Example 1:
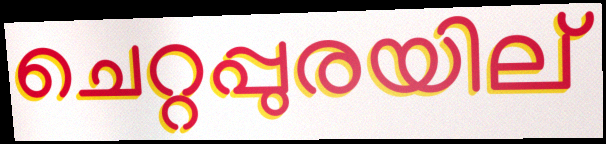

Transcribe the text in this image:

ചെറ്റപ്പുരയില്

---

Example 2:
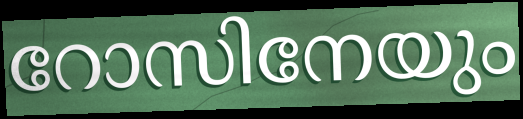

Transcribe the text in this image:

റോസിനേയും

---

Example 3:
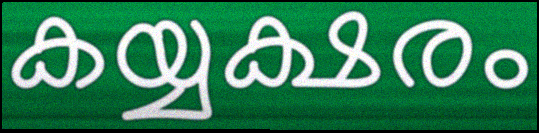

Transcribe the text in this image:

കയ്യക്ഷരം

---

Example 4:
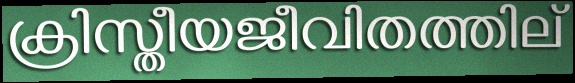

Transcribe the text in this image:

ക്രിസ്തീയജീവിതത്തില്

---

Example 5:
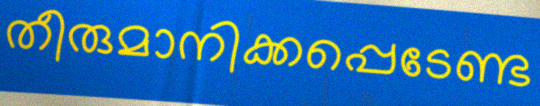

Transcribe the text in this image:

തീരുമാനിക്കപ്പെടേണ്ട